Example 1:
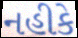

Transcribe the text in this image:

નહીકે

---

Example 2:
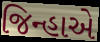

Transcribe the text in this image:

જિન્હાએ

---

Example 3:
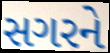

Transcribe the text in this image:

સગરને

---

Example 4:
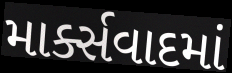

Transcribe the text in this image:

માર્ક્સવાદમાં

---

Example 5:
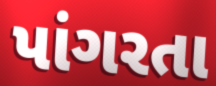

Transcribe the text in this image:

પાંગરતા